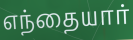
எந்தையார்